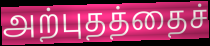
அற்புதத்தைச்